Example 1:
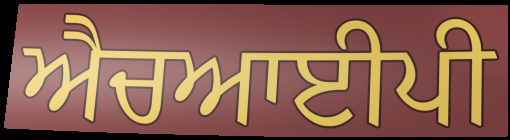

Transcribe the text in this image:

ਐਚਆਈਪੀ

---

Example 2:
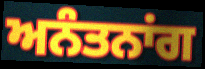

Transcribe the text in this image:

ਅਨੰਤਨਾਂਗ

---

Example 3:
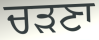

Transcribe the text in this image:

ਚੜਣਾ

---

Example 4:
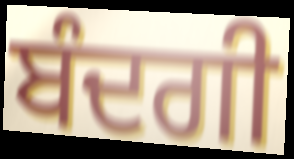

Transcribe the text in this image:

ਬੰਦਗੀ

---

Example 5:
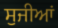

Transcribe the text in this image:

ਸੁਜੀਆਂ